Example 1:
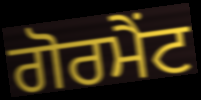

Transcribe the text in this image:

ਗੋਰਮੈਂਟ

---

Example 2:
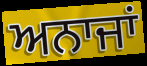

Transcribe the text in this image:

ਅਨਾਜਾਂ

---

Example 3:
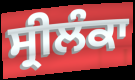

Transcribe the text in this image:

ਸ੍ਰੀਲੰਕਾ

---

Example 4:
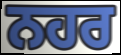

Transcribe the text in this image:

ਨਹਰ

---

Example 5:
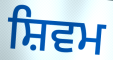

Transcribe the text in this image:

ਸ਼ਿਵਮ